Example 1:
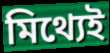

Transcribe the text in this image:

মিথ্যেই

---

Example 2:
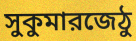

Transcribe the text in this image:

সুকুমারজেঠু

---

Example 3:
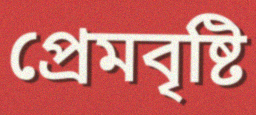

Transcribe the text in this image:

প্রেমবৃষ্টি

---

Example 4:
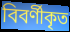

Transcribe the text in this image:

বিবর্ণীকৃত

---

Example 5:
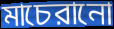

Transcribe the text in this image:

মাচেরানো